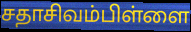
சதாசிவம்பிள்ளை